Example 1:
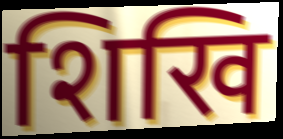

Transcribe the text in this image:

शिखि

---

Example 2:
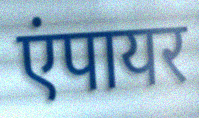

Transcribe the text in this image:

एंपायर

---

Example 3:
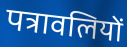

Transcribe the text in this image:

पत्रावलियों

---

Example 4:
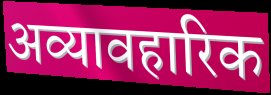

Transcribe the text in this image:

अव्यावहारिक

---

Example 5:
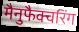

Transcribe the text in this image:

मैनुफैक्चरिंग